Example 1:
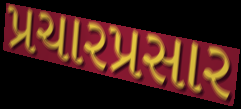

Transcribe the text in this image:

પ્રચારપ્રસાર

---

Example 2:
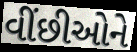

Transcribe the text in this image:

વીંછીઓને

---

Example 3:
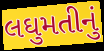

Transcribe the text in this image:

લઘુમતીનું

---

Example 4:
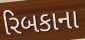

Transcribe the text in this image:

રિબકાના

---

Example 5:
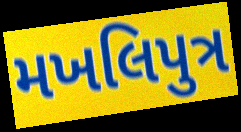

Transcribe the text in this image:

મખલિપુત્ર